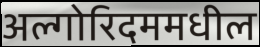
अल्गोरिदममधील